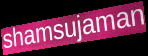
shamsujaman